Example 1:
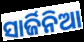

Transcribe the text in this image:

ସାର୍ଜିନିଆ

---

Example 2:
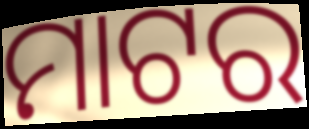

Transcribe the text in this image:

ମାଟର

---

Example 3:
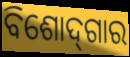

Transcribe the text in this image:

ବିଶୋଦ୍‌ଗାର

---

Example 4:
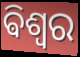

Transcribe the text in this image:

ଵିଶ୍ୱର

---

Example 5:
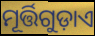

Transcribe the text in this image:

ମୂର୍ତ୍ତିଗୁଡ଼ାଏ